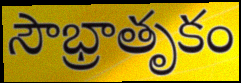
సౌభ్రాతృకం